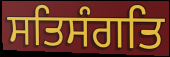
ਸਤਿਸੰਗਤਿ